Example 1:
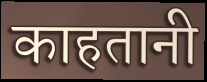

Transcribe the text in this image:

काहतानी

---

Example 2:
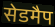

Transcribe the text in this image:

सेडमैप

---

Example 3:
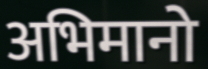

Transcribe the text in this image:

अभिमानो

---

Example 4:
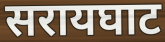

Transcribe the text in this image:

सरायघाट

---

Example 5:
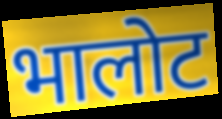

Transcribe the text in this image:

भालोट